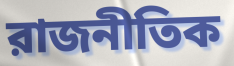
রাজনীতিক